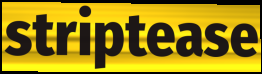
striptease